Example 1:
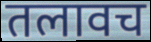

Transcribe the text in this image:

तलावच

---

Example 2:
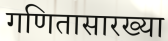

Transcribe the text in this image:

गणितासारख्या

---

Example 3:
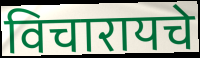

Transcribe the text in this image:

विचारायचे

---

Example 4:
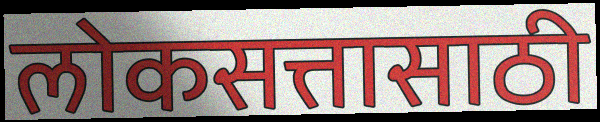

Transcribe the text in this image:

लोकसत्तासाठी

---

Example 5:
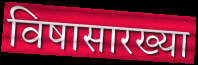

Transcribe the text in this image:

विषासारख्या